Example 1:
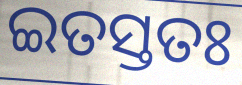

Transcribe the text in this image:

ଇତସ୍ତତଃ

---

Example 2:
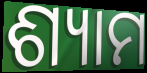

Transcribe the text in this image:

ଶ୍ୟାମ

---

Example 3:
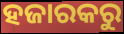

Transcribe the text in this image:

ହଜାରକରୁ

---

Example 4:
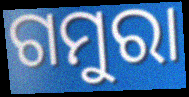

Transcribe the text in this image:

ଗମୁରା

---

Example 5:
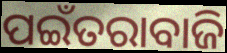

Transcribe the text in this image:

ପଇଁତରାବାଜି